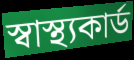
স্বাস্থ্যকার্ড